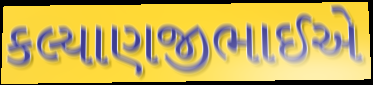
કલ્યાણજીભાઈએ